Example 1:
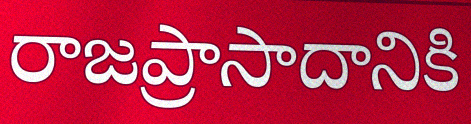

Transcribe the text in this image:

రాజప్రాసాదానికి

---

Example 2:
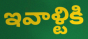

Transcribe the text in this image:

ఇవాళ్టికి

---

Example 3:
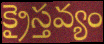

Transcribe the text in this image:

క్రైస్తవ్యం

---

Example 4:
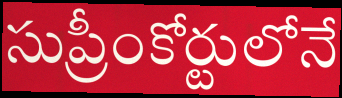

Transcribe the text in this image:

సుప్రీంకోర్టులోనే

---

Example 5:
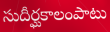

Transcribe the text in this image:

సుదీర్ఘకాలంపాటు